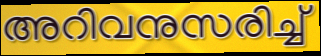
അറിവനുസരിച്ച്